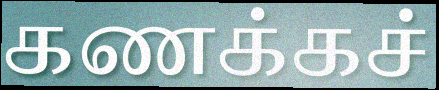
கணக்கச்